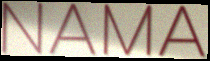
NAMA